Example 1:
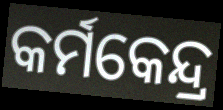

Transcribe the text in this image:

କର୍ମକେନ୍ଦ୍ର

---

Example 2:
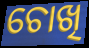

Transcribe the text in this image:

ଚୋଖି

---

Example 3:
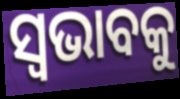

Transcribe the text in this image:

ସ୍ୱଭାବକୁ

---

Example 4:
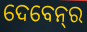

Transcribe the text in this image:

ଦେବେନ୍‌ର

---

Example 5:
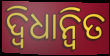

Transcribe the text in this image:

ଦ୍ଵିଧାନ୍ୱିତ